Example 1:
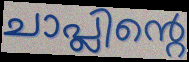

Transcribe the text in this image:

ചാപ്ലിന്റെ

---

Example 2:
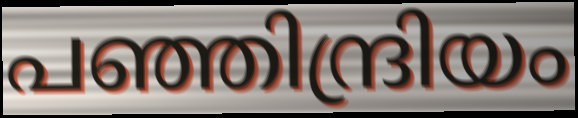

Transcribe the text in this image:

പഞ്ഞിന്ദ്രിയം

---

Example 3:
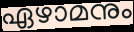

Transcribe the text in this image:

ഏഴാമനും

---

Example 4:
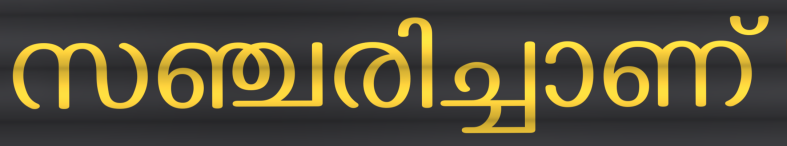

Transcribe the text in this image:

സഞ്ചരിച്ചാണ്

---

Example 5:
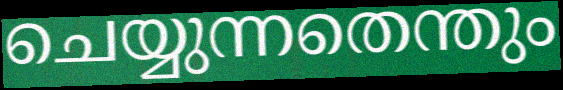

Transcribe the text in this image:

ചെയ്യുന്നതെന്തും